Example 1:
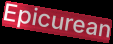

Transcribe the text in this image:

Epicurean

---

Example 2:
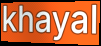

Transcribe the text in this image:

khayal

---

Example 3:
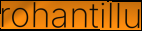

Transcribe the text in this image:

rohantillu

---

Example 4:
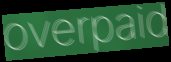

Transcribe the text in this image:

overpaid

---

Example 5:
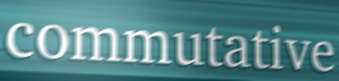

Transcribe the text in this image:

commutative